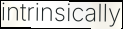
intrinsically